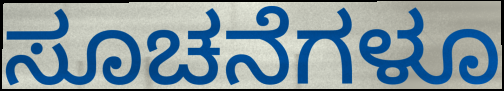
ಸೂಚನೆಗಳೂ